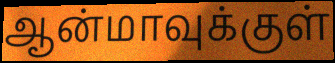
ஆன்மாவுக்குள்